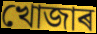
খোজাৰ